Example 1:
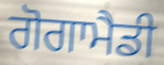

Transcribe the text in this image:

ਗੋਗਾਮੈਡੀ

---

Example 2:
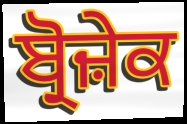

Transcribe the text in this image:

ਬ੍ਰੋਜ਼ੇਕ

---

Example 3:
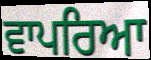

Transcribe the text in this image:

ਵਾਪਰਿਆ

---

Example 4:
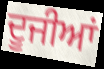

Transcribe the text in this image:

ਦੂਜੀਆਂ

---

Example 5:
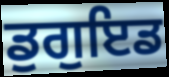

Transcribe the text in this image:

ਡੁਗੁਇਡ